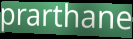
prarthane